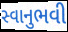
સ્વાનુભવી